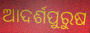
ଆଦର୍ଶପୁରୁଷ